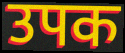
उपक